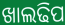
ଖାଲଢିପ